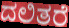
ದಲಿತರೆ